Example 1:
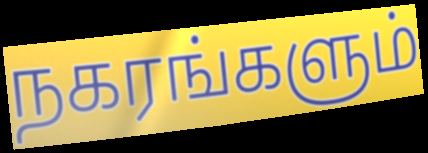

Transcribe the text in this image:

நகரங்களும்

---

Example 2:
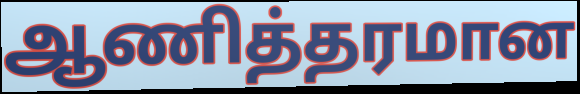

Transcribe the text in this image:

ஆணித்தரமான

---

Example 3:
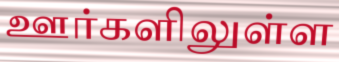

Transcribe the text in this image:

ஊர்களிலுள்ள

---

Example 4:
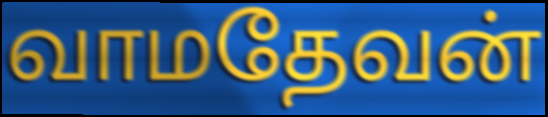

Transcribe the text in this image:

வாமதேவன்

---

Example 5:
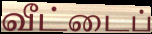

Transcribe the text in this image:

வீட்டைப்